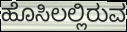
ಹೊಸಿಲಲ್ಲಿರುವ